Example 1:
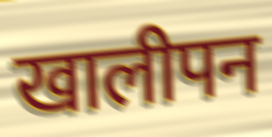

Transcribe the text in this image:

खालीपन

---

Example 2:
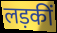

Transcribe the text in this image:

लड़कीं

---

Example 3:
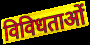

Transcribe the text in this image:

विविधताओं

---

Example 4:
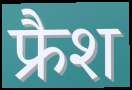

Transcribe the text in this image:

फ्रैश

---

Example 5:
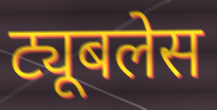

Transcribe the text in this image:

ट्यूबलेस